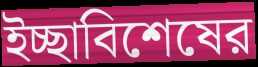
ইচ্ছাবিশেষের